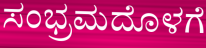
ಸಂಭ್ರಮದೊಳಗೆ